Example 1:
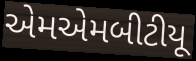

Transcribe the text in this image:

એમએમબીટીયૂ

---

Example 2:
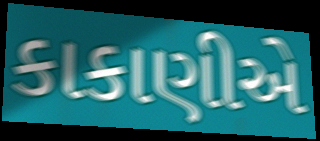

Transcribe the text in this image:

કાકાણીએ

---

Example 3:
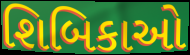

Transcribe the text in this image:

શિબિકાઓ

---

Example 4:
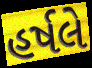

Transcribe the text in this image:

હર્ષલે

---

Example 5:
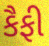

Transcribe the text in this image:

કૈફી